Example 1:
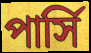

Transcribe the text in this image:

পার্সি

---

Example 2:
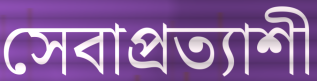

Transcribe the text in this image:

সেবাপ্রত্যাশী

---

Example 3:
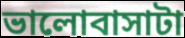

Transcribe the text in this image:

ভালোবাসাটা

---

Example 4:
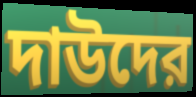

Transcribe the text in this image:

দাউদের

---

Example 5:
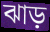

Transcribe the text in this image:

ঝাড়